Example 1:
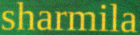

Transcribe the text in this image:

sharmila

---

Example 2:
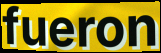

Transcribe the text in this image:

fueron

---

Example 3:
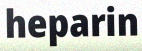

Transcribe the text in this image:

heparin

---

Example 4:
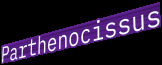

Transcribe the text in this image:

Parthenocissus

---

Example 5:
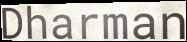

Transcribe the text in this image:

Dharman